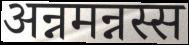
अन्नमन्नस्स